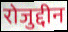
रोजुद्दीन